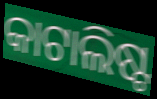
କାଟାଲିଷ୍ଟ